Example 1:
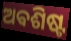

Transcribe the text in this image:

ଅଵଶିଷ୍ଟ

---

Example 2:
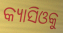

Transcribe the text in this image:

କ୍ୟାସିଓକୁ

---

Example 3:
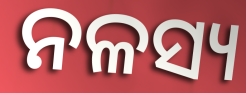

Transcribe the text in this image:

ନଳସ୍ୟ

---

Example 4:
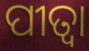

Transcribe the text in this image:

ପୀତ୍ବା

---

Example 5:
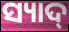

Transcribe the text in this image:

ସ୍ୟାଦ୍